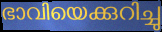
ഭാവിയെക്കുറിച്ചു